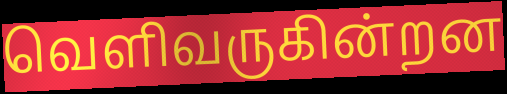
வெளிவருகின்றன